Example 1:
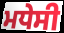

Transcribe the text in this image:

ਮਧੇਸੀ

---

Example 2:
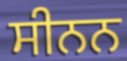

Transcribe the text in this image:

ਸੀਨਨ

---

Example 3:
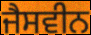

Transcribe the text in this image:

ਜੈਸਵੀਨ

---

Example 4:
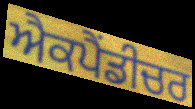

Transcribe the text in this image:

ਐਕਪੈਂਡੀਚਰ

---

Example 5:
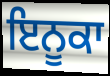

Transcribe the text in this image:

ਇਨੂਕਾ